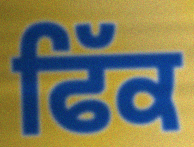
ਫਿੱਕ